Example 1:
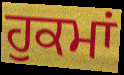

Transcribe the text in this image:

ਹੁਕਮਾਂ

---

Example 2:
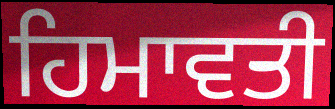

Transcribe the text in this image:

ਹਿਮਾਵਤੀ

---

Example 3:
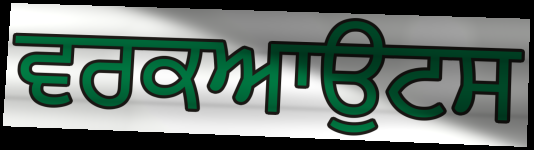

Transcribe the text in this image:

ਵਰਕਆਉਟਸ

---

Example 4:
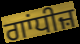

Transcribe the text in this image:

ਗਾਂਧੀਜ਼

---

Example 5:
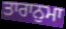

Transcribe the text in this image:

ਤਾਰਾਨੁਮਾ